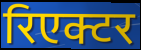
रिएक्टर